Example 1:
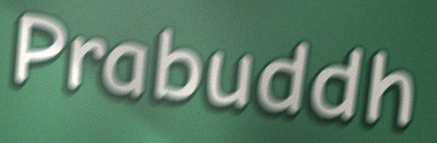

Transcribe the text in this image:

Prabuddh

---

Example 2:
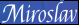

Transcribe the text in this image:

Miroslav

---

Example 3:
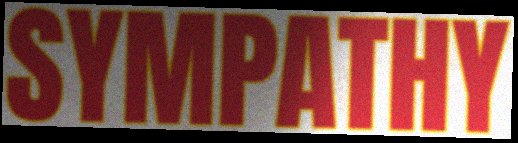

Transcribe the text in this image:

SYMPATHY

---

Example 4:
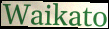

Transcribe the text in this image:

Waikato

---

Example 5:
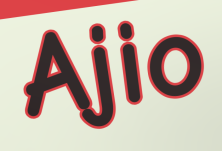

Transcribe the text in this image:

Ajio